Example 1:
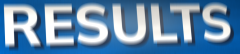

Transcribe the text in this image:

RESULTS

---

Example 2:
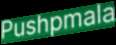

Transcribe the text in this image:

Pushpmala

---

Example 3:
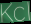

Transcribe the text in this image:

Kcl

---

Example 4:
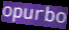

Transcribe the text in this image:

opurbo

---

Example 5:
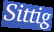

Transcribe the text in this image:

Sittig